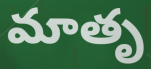
మాతృ